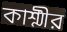
কাশ্মীর